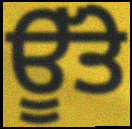
ਊੱਤੇ